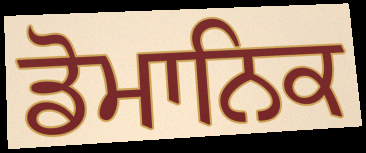
ਡੋਮਾਨਿਕ